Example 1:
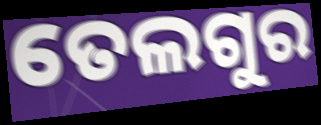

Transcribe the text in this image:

ତେଲଗୁର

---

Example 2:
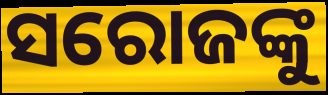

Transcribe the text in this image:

ସରୋଜଙ୍କୁ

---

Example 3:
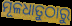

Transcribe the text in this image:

ମୂଳଧାତୁଠାରୁ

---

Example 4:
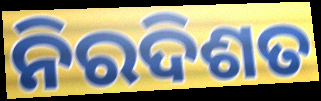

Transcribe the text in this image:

ନିରଦିଶତ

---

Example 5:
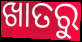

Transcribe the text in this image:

ଖାତରୁ